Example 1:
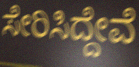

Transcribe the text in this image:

ಸೇರಿಸಿದ್ದೇವೆ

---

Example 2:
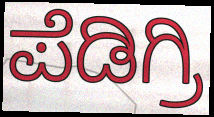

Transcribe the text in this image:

ಪೆಡಿಗ್ರಿ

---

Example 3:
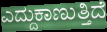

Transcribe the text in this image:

ಎದ್ದುಕಾಣುತ್ತಿದೆ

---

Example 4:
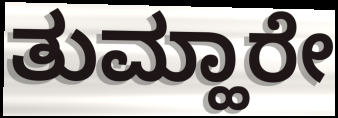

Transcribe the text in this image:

ತುಮ್ಹಾರೇ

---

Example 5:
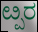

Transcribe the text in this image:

ೞ್ಪರ